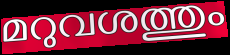
മറുവശത്തും